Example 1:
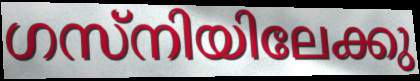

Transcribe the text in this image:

ഗസ്നിയിലേക്കു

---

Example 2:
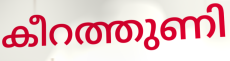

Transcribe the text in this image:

കീറത്തുണി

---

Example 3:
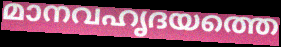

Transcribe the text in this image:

മാനവഹൃദയത്തെ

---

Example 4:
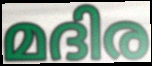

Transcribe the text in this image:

മദിര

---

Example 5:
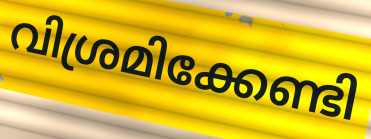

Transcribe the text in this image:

വിശ്രമിക്കേണ്ടി